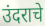
उंदराचे